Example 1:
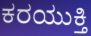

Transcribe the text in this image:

ಕರಯುಕ್ತಿ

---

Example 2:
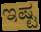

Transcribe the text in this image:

ಇಷ್ಟ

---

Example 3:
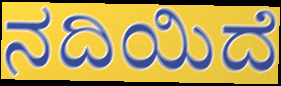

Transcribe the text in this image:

ನದಿಯಿದೆ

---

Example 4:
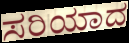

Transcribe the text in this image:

ಸರಿಯಾದ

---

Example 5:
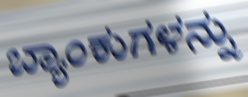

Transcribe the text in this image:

ಬ್ಯಾಂಕುಗಳನ್ನು